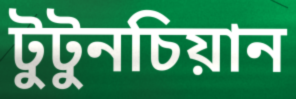
টুটুনচিয়ান